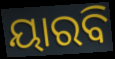
ୟାରବି